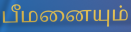
பீமனையும்